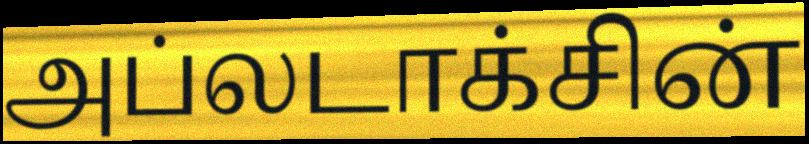
அப்லடாக்சின்